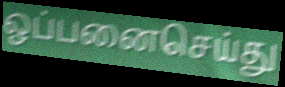
ஒப்பனைசெய்து